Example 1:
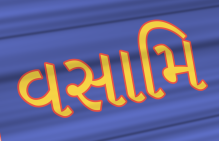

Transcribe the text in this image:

વસામિ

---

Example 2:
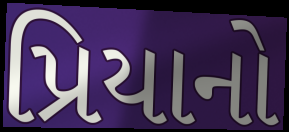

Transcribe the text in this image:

પ્રિયાનો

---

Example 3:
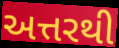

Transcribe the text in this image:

અત્તરથી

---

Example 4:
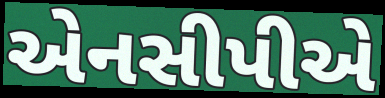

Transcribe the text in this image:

એનસીપીએ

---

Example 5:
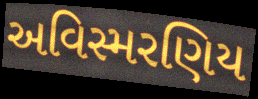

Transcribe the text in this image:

અવિસ્મરણિય